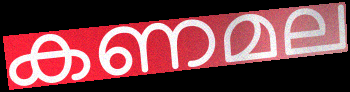
കണമല